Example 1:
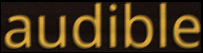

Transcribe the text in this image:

audible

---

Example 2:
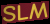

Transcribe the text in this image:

SLM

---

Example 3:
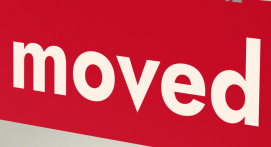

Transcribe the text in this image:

moved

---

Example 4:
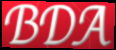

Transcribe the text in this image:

BDA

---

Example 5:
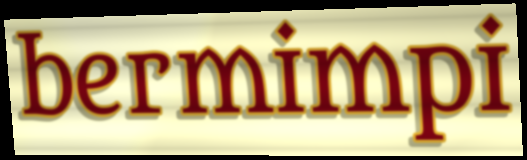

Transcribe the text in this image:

bermimpi